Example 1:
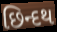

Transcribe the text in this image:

છિન્દથ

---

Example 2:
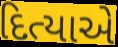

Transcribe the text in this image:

દિત્યાએ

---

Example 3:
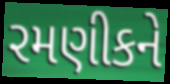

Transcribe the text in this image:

રમણીકને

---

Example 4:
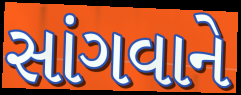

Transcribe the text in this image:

સાંગવાને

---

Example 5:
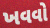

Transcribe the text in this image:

ખવવો